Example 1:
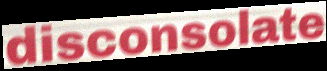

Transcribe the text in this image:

disconsolate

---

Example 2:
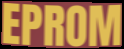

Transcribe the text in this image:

EPROM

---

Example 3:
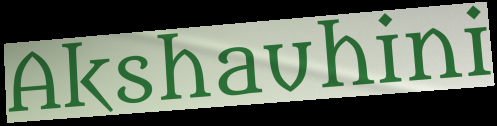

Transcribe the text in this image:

Akshauhini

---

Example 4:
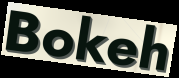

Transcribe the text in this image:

Bokeh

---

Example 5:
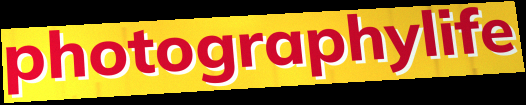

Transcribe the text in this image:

photographylife